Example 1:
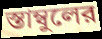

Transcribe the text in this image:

স্তাম্বুলের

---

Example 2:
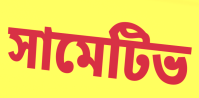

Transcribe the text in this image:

সামেটিভ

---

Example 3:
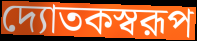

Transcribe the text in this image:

দ্যোতকস্বরূপ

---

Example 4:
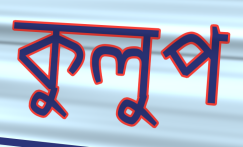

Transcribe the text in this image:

কুলুপ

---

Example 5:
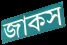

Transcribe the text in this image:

জাকস